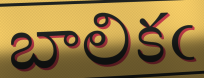
బాలికఁ